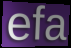
efa